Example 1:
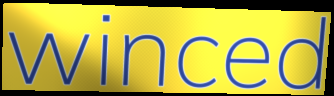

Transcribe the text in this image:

winced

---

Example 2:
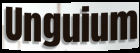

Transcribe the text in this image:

Unguium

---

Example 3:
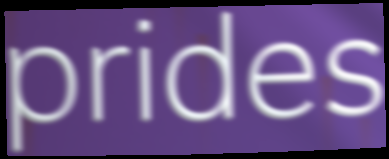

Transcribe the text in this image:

prides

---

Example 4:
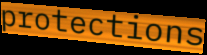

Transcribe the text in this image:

protections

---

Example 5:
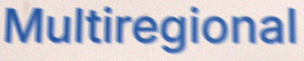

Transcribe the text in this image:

Multiregional